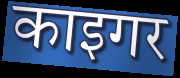
काइगर